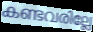
കണ്ടവരില്ലേ